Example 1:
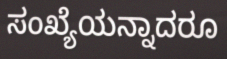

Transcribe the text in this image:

ಸಂಖ್ಯೆಯನ್ನಾದರೂ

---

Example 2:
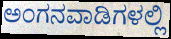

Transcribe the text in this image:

ಅಂಗನವಾಡಿಗಳಲ್ಲಿ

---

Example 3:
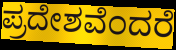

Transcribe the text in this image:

ಪ್ರದೇಶವೆಂದರೆ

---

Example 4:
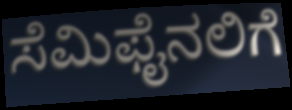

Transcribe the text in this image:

ಸೆಮಿಫೈನಲಿಗೆ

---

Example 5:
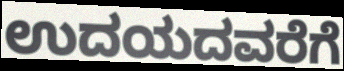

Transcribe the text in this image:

ಉದಯದವರೆಗೆ